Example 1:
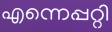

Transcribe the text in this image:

എന്നെപ്പറ്റി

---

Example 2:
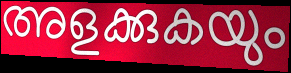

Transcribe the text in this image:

അളക്കുകയും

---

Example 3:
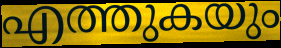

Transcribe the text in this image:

എത്തുകയും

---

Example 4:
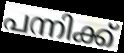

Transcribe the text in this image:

പന്നിക്ക്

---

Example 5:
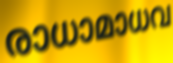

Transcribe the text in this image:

രാധാമാധവ